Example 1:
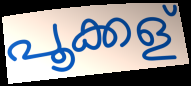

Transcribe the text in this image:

പൂക്കള്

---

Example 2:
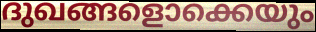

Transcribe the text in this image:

ദുഖങ്ങളൊക്കെയും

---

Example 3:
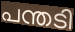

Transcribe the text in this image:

പന്തടി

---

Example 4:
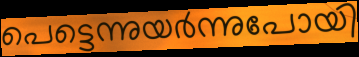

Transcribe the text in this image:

പെട്ടെന്നുയർന്നുപോയി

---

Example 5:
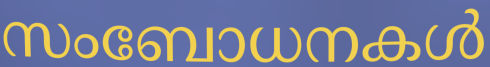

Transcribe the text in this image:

സംബോധനകൾ